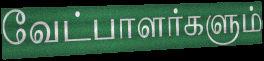
வேட்பாளர்களும்